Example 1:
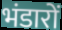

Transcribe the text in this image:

भंडारों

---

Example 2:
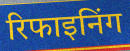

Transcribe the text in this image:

रिफाइनिंग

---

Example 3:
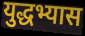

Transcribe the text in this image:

युद्धभ्यास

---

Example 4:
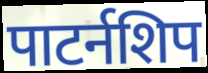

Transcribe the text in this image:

पाटर्नशिप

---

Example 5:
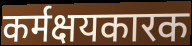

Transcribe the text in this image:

कर्मक्षयकारक